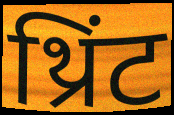
थ्रिंट